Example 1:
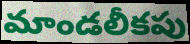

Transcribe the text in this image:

మాండలీకపు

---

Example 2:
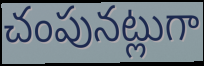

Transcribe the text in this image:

చంపునట్లుగా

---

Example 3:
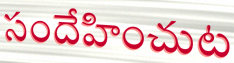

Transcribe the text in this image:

సందేహించుట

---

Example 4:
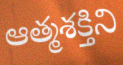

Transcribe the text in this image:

ఆత్మశక్తిని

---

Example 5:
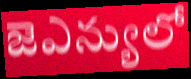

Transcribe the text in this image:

జెఎన్యులో